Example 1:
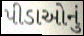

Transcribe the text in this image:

પીડાઓનું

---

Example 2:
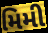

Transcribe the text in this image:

મિમી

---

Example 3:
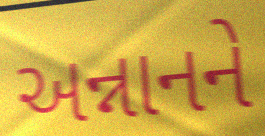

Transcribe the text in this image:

અન્નાનને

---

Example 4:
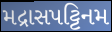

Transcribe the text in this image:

મદ્રાસપટ્ટિનમ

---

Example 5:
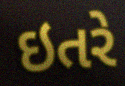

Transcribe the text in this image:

ઇતરે